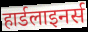
हार्डलाइनर्स